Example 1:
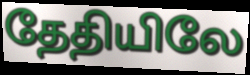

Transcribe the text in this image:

தேதியிலே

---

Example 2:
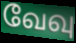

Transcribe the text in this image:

வேவு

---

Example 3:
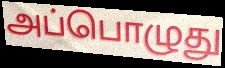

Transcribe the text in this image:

அப்பொழுது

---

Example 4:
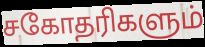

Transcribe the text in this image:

சகோதரிகளும்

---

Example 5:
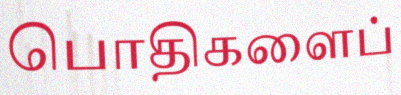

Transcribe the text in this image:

பொதிகளைப்